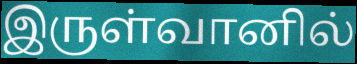
இருள்வானில்